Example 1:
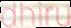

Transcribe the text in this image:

dhiru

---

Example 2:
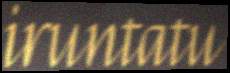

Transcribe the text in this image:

iruntatu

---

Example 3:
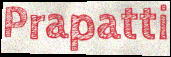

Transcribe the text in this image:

Prapatti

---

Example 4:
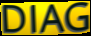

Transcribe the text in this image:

DIAG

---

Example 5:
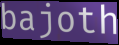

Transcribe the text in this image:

bajoth